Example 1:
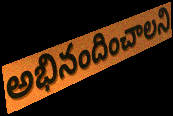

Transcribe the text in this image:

అభినందించాలని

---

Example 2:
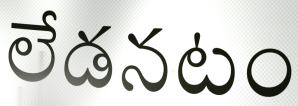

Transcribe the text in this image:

లేడనటం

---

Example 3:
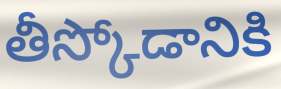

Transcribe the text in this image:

తీస్కోడానికి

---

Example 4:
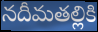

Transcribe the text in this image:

నదీమతల్లికి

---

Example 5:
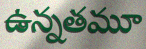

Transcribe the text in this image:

ఉన్నతమూ